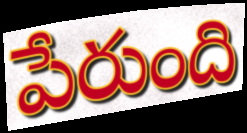
పేరుంది